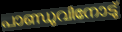
പാണ്ഡുവിനോടു്